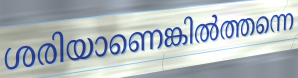
ശരിയാണെങ്കിൽത്തന്നെ